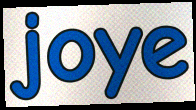
joye